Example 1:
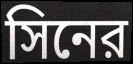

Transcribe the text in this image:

সিনের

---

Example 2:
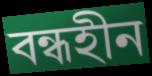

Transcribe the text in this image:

বন্ধহীন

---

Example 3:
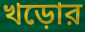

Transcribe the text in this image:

খড়োর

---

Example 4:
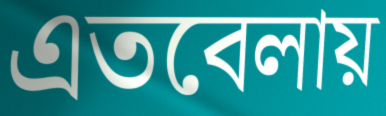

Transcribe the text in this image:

এতবেলায়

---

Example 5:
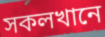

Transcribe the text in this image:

সকলখানে